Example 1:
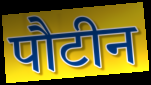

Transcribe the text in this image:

पौटीन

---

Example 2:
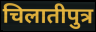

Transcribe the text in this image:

चिलातीपुत्र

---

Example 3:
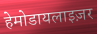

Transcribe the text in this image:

हेमोडायलाइज़र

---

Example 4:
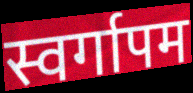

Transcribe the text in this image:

स्वर्गापम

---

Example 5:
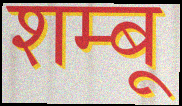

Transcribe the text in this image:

शम्बू